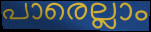
പാരെല്ലാം